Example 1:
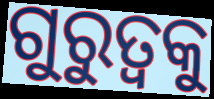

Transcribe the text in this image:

ଗୁରୁତ୍ୱକୁ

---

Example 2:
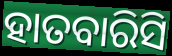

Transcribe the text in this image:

ହାତବାରିସି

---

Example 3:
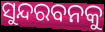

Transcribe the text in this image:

ସୁନ୍ଦରବନକୁ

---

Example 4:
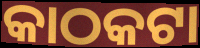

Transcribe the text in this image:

କାଠକଟା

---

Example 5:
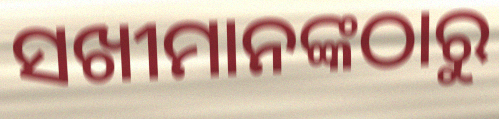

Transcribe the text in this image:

ସଖୀମାନଙ୍କଠାରୁ